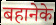
बहानेके